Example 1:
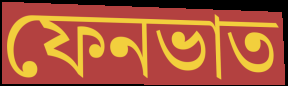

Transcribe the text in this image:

ফেনভাত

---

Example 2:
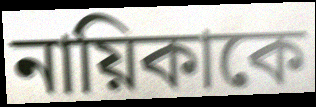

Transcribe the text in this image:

নায়িকাকে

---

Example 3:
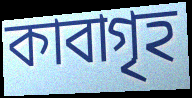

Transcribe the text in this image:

কাবাগৃহ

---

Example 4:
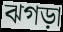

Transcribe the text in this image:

ঝগড়া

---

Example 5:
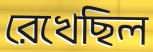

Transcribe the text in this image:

রেখেছিল